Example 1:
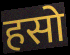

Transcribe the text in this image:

हसो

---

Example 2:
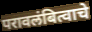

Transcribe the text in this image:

परावलंबित्वाचे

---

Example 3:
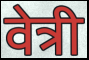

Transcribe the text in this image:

वेत्री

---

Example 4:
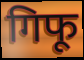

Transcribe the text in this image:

गिफू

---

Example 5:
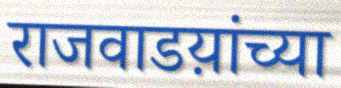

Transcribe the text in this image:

राजवाडय़ांच्या